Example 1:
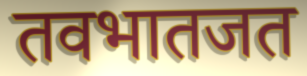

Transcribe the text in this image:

तवभातजत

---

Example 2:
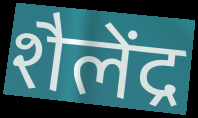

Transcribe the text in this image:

शैलेंद्र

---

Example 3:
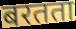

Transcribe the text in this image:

बरतता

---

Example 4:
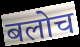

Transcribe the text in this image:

बलोच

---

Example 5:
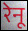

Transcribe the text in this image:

रेनू